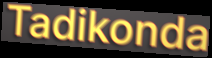
Tadikonda